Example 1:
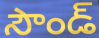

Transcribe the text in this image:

సౌండ్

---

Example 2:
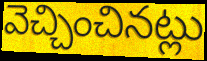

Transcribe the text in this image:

వెచ్చించినట్లు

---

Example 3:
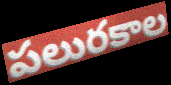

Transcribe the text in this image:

పలురకాల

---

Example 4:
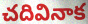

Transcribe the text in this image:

చదివినాక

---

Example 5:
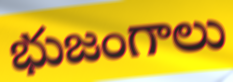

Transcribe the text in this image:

భుజంగాలు